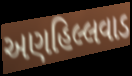
અણહિલ્લવાડ